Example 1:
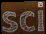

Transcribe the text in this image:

sci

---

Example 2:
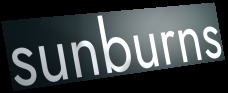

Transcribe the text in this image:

sunburns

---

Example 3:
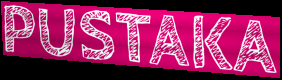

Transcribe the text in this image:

PUSTAKA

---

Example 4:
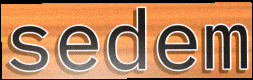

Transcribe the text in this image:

sedem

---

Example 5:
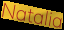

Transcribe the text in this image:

Natalia